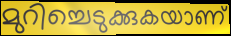
മുറിച്ചെടുക്കുകയാണ്